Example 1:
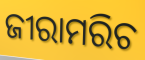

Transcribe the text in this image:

ଜୀରାମରିଚ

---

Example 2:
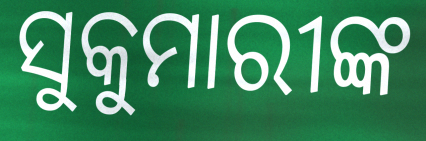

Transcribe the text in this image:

ସୁକୁମାରୀଙ୍କ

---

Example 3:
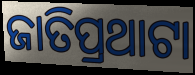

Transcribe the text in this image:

ଜାତିପ୍ରଥାଟା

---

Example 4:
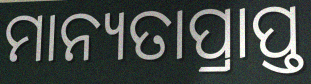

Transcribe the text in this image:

ମାନ୍ୟତାପ୍ରାପ୍ତ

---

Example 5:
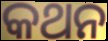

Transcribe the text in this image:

କଥନ